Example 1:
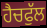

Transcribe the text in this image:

ਹੈਚਫੁੱਲ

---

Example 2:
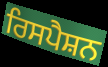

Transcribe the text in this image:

ਰਿਸਪੈਸ਼ਨ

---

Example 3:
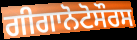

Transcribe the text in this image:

ਗੀਗਾਨੋਟੋਸੌਰਸ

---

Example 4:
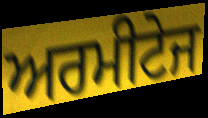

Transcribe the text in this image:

ਅਰਮੀਟੇਜ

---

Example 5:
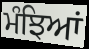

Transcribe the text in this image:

ਮੰਝਿਆਂ